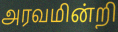
அரவமின்றி